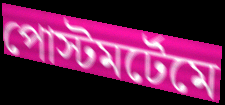
পোস্টমর্টেমে